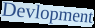
Devlopment